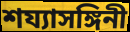
শয্যাসঙ্গিনী